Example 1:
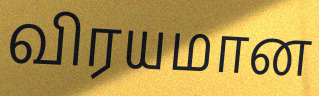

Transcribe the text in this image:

விரயமான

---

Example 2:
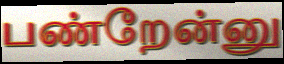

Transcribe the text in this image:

பண்றேன்னு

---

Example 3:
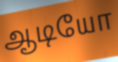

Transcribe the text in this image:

ஆடியோ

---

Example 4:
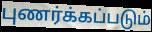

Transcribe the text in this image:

புணர்க்கப்படும்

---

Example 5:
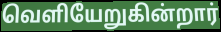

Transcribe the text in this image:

வெளியேறுகின்றார்